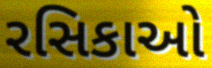
રસિકાઓ